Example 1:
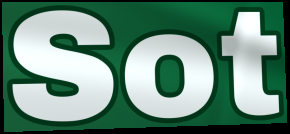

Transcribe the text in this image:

Sot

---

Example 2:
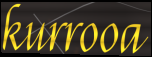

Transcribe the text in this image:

kurrooa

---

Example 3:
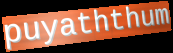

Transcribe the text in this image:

puyaththum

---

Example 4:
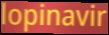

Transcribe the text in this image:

lopinavir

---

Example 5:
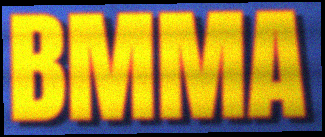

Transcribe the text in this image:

BMMA